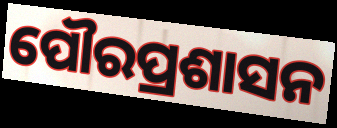
ପୌରପ୍ରଶାସନ